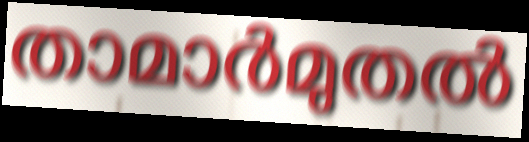
താമാർമുതൽ